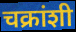
चक्रांशी